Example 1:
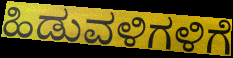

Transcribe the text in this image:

ಹಿಡುವಳಿಗಳಿಗೆ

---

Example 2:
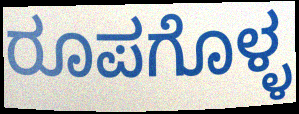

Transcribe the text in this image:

ರೂಪಗೊಳ್ಳ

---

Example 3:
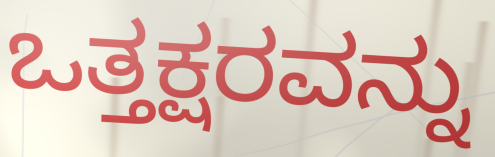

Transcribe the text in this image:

ಒತ್ತಕ್ಷರವನ್ನು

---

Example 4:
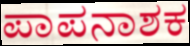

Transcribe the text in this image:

ಪಾಪನಾಶಕ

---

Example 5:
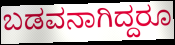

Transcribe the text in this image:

ಬಡವನಾಗಿದ್ದರೂ